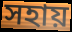
সহায়